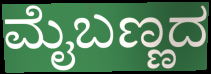
ಮೈಬಣ್ಣದ